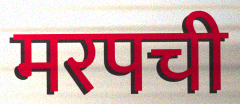
मरपची